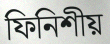
ফিনিশীয়